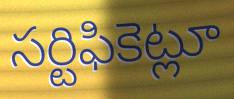
సర్టిఫికెట్లూ